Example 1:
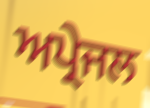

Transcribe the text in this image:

ਅਪ੍ਰੇਜਲ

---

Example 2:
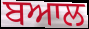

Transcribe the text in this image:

ਬਆਲ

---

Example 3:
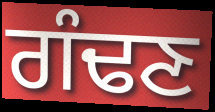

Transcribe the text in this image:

ਗੰਢਣ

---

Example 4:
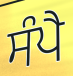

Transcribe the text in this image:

ਸੰਪੈ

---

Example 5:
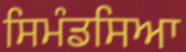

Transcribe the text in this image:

ਸਿਮੰਡਸਿਆ